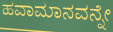
ಹವಾಮಾನವನ್ನೇ